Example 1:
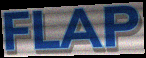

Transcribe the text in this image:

FLAP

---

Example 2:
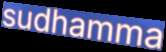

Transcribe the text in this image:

sudhamma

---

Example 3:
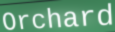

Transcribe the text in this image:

Orchard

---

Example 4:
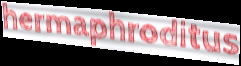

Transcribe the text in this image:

hermaphroditus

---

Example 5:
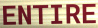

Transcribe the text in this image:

ENTIRE